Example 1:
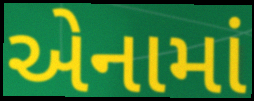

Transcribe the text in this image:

એનામાં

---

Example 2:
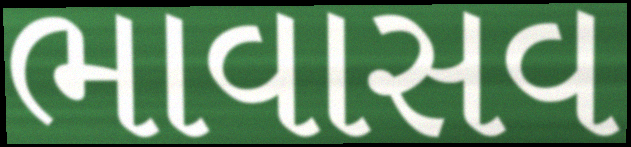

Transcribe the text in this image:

ભાવાસવ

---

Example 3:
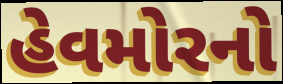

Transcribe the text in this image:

હેવમોરનો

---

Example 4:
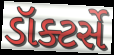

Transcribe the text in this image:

ડૉક્ટર્સે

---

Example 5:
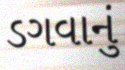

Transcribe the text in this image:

ડગવાનું